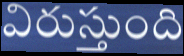
విరుస్తుంది